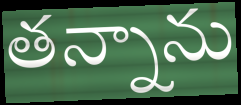
తన్నాను